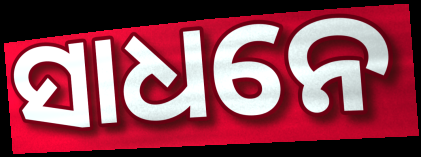
ସାଧନେ